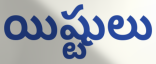
యిష్టులు